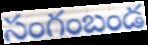
సంగంబండ